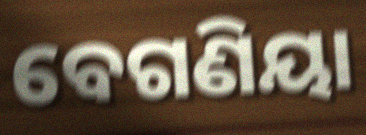
ବେଗଣିୟା